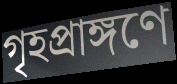
গৃহপ্রাঙ্গণে